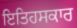
ਇਤਿਹਸਕਾਰ